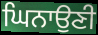
ਘਿਨਾਉਣੀ